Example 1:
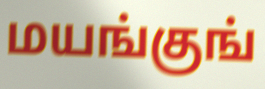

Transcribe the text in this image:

மயங்குங்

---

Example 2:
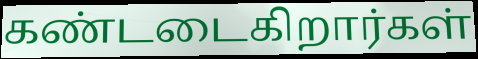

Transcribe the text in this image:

கண்டடைகிறார்கள்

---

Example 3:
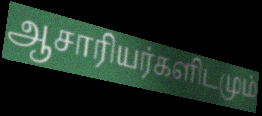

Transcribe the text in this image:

ஆசாரியர்களிடமும்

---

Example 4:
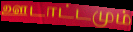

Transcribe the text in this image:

ஊடாட்டமும்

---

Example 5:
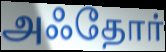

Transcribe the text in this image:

அஃதோர்